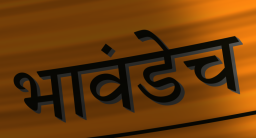
भावंडेच